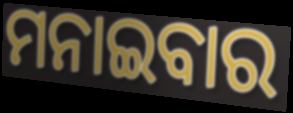
ମନାଇବାର